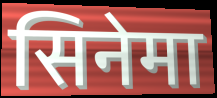
सिनेमा